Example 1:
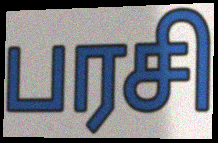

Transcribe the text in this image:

பரசி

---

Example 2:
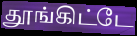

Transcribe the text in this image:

தூங்கிட்டே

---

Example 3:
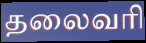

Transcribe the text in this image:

தலைவரி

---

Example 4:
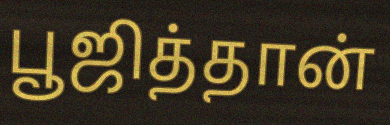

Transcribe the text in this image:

பூஜித்தான்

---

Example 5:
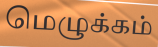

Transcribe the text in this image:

மெழுக்கம்